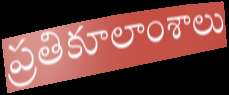
ప్రతికూలాంశాలు